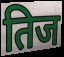
तिज